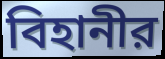
বিহানীর